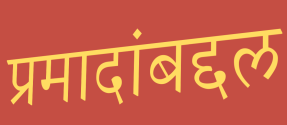
प्रमादांबद्दल